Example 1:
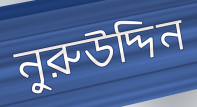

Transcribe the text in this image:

নুরুউদ্দিন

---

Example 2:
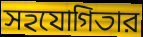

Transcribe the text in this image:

সহযোগিতার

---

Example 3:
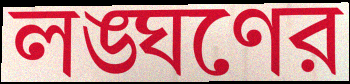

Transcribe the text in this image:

লঙ্ঘণের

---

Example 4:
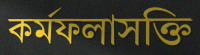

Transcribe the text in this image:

কর্মফলাসক্তি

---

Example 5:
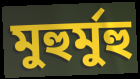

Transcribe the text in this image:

মুহুর্মুহু